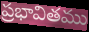
ప్రభావితము